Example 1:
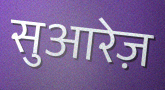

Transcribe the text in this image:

सुआरेज़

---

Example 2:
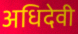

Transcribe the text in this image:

अधिदेवी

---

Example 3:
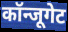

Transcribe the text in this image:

कॉन्जूगेट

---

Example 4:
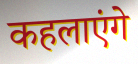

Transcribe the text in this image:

कहलाएंगे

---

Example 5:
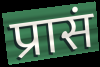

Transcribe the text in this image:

प्रासं